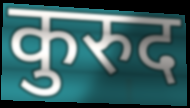
कुरुद